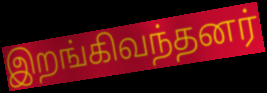
இறங்கிவந்தனர்